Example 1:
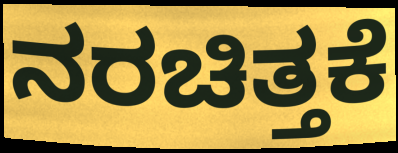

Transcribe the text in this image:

ನರಚಿತ್ತಕೆ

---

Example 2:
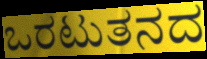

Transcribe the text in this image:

ಒರಟುತನದ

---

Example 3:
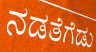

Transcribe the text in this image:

ನಡತೆಗೆಡು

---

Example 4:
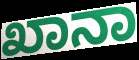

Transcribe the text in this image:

ಖಾನಾ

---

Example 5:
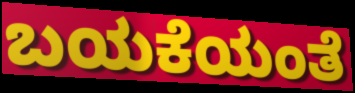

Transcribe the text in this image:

ಬಯಕೆಯಂತೆ